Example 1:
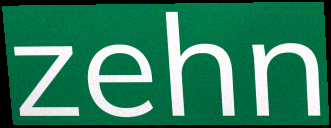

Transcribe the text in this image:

zehn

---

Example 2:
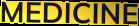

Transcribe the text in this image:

MEDICINE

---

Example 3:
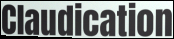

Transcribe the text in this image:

Claudication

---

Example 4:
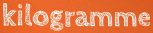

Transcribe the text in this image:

kilogramme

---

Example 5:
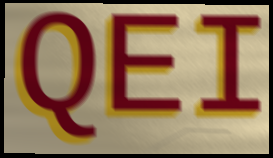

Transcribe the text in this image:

QEI